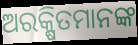
ଅରକ୍ଷିତମାନଙ୍କ